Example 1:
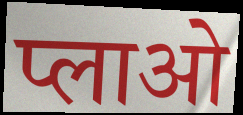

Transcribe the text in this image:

प्लाओ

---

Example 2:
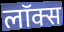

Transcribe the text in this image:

लॉक्स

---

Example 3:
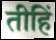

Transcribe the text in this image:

तीहिं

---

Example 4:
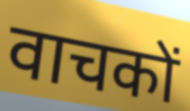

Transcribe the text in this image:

वाचकों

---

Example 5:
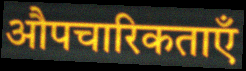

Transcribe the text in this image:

औपचारिकताएँ